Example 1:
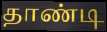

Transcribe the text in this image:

தாண்டி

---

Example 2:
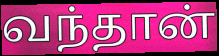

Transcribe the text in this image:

வந்தான்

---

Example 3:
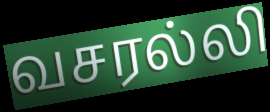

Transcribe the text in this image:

வசரல்லி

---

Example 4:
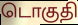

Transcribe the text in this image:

டொகுதி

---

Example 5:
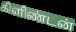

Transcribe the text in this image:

கிளிண்டன்